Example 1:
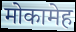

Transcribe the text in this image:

मोकामेह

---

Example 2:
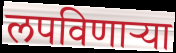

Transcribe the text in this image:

लपविणाऱ्या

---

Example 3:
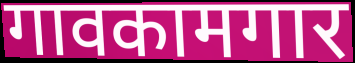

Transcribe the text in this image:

गावकामगार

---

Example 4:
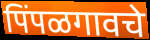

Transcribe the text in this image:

पिंपळगावचे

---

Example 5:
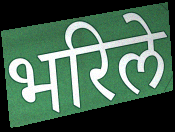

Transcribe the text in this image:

भरिले